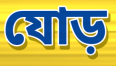
যোড়